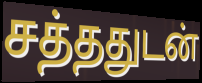
சத்ததுடன்